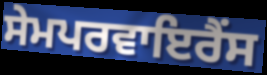
ਸੇਮਪਰਵਾਇਰੈਂਸ